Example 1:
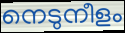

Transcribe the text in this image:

നെടുനീളം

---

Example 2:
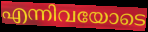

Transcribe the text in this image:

എന്നിവയോടെ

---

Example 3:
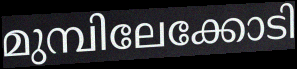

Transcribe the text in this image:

മുമ്പിലേക്കോടി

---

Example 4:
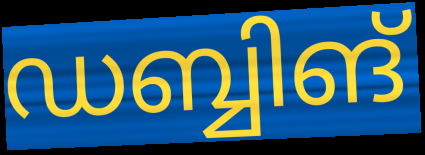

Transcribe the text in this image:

ഡബ്ബിങ്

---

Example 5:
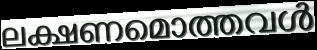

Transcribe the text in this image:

ലക്ഷണമൊത്തവൾ